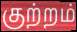
குற்றம்